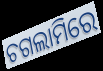
ଚଗଲାମିରେ